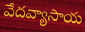
వేదవ్యాసాయ